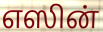
எஸின்